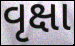
વૃક્ષા